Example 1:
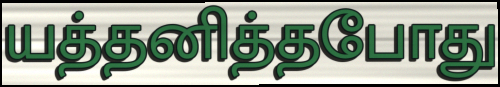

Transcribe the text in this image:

யத்தனித்தபோது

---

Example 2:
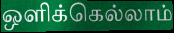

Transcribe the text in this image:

ஒளிக்கெல்லாம்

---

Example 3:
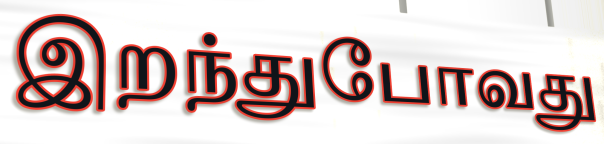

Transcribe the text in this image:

இறந்துபோவது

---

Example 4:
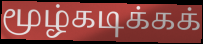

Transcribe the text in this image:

மூழ்கடிக்கக்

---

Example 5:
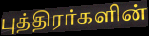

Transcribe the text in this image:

புத்திரர்களின்